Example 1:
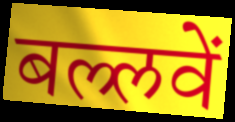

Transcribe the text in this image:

बल्लवें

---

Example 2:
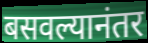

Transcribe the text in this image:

बसवल्यानंतर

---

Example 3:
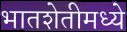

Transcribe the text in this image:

भातशेतीमध्ये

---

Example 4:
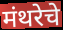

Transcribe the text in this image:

मंथरेचे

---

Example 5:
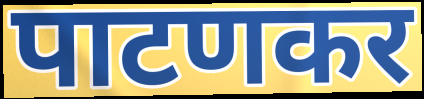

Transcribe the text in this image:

पाटणकर